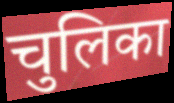
चुलिका